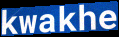
kwakhe